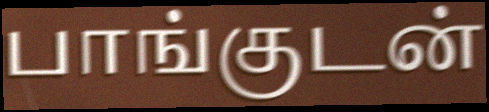
பாங்குடன்